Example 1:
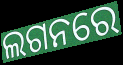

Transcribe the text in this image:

ଲଗନରେ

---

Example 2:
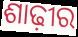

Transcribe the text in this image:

ଶାଢ଼ୀର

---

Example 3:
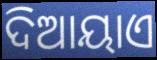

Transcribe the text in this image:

ଦିଆୟାଏ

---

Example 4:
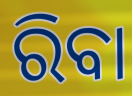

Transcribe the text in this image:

ରିବା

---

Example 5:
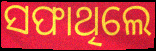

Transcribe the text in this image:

ସଫାଥିଲେ